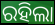
ରହିଲା